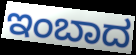
ಇಂಬಾದ